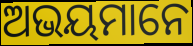
ଅଭୟମାନେ